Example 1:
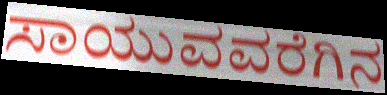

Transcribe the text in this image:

ಸಾಯುವವರೆಗಿನ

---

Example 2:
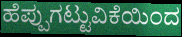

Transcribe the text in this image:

ಹೆಪ್ಪುಗಟ್ಟುವಿಕೆಯಿಂದ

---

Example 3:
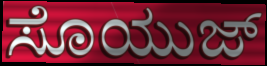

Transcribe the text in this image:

ಸೊಯುಜ್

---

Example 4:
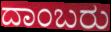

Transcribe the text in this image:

ದಾಂಬರು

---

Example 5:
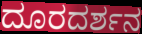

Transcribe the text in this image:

ದೂರದರ್ಶನ